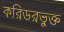
করিডরভুক্ত